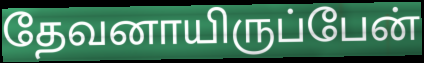
தேவனாயிருப்பேன்